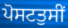
ਪੋਸਟਤੁਸੀਂ